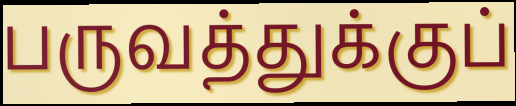
பருவத்துக்குப்